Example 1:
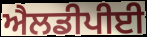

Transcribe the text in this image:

ਐਲਡੀਪੀਈ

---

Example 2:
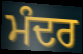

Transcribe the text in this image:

ਮੰਦਰ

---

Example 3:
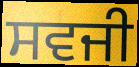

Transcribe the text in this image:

ਸਵਜੀ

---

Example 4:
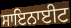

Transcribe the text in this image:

ਸਾਇਨਾਈਟ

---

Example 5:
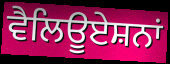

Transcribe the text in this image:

ਵੈਲਿਊਏਸ਼ਨਾਂ